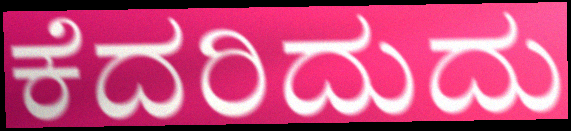
ಕೆದರಿದುದು